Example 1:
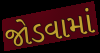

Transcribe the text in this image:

જોડવામાં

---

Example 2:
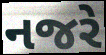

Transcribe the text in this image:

નજરે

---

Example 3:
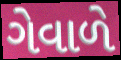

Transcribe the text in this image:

ગેવાળે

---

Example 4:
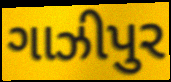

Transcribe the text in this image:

ગાઝીપુર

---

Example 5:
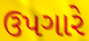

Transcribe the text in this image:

ઉપગારે